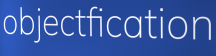
objectfication